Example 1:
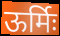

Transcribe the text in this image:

ऊर्मिः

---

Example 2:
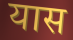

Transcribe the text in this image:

यास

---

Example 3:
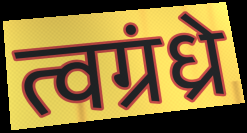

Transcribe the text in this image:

त्वग्रंध्रे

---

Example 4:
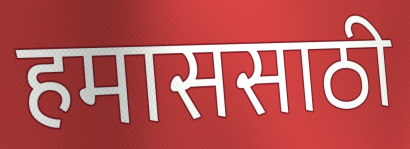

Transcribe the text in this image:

हमाससाठी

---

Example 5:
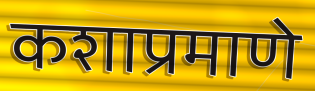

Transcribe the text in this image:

कशाप्रमाणे